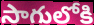
సాగులోకి